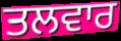
ਤਲਵਾਰ